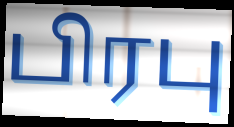
பிரபு